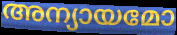
അന്യായമോ